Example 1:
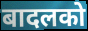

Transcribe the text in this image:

बादलको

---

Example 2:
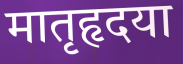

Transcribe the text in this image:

मातृहृदया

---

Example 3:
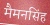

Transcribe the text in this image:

मैमनसिंह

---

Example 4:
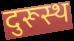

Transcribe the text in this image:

दुरूस्थ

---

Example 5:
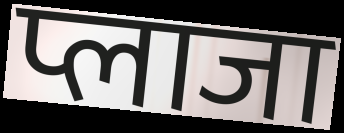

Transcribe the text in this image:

प्‍लाजा